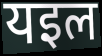
यइल